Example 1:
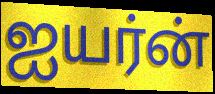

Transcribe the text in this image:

ஐயர்ன்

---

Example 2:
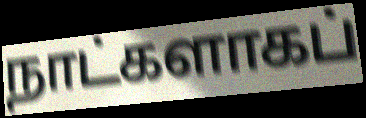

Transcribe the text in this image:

நாட்களாகப்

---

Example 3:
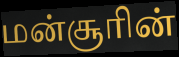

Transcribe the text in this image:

மன்சூரின்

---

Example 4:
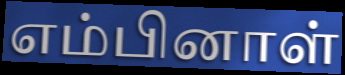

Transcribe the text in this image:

எம்பினாள்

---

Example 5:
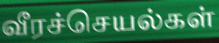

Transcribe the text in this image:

வீரச்செயல்கள்